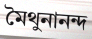
মৈথুনানন্দ